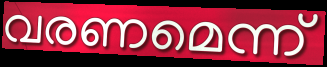
വരണമെന്ന്